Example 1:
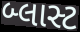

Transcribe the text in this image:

બ્લાસ્ટ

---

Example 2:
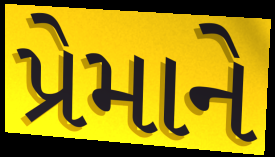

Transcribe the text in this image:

પ્રેમાને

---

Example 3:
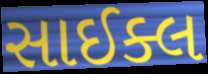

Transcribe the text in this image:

સાઈક્લ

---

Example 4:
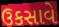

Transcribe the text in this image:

ઉકસાવે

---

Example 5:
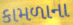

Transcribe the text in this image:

કામળાના